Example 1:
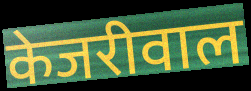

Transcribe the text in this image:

केजरीवाल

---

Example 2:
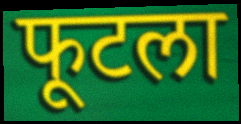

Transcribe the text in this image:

फूटला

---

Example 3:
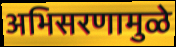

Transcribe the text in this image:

अभिसरणामुळे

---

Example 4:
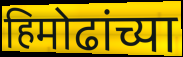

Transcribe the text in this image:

हिमोढांच्या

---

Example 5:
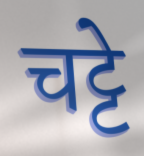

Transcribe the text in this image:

चट्टे